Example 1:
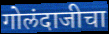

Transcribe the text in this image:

गोलंदाजीचा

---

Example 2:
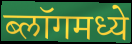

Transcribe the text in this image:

ब्लॉगमध्ये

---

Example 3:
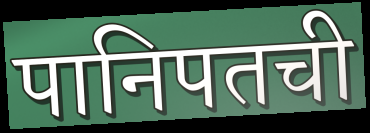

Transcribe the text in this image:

पानिपतची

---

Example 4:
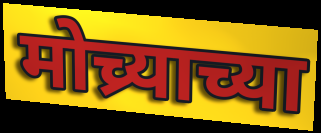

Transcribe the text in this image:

मोच्र्याच्या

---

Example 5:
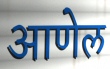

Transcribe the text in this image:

आणेल